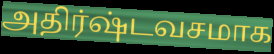
அதிர்ஷ்டவசமாக